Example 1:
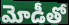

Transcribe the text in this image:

మోడీతో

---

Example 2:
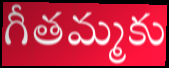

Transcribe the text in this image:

గీతమ్మకు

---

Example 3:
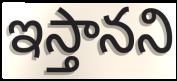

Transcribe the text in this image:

ఇస్తానని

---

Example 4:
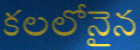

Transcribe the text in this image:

కలలోనైన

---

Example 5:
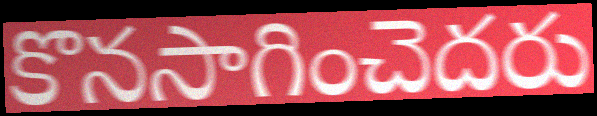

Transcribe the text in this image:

కొనసాగించెదరు